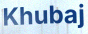
Khubaj